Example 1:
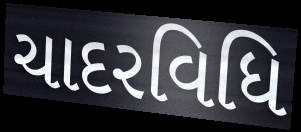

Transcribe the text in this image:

ચાદરવિધિ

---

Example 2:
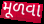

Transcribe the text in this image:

મૂળવા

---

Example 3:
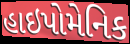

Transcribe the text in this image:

હાઇપોમેનિક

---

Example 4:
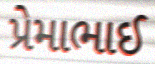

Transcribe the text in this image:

પ્રેમાભાઈ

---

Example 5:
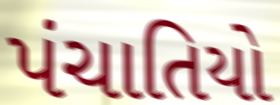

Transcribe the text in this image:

પંચાતિયો